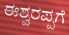
ಈಶ್ವರಪ್ಪಗೆ